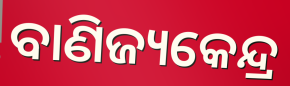
ବାଣିଜ୍ୟକେନ୍ଦ୍ର